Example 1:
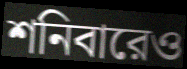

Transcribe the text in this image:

শনিবারেও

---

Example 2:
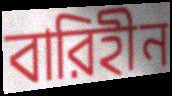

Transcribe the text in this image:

বারিহীন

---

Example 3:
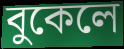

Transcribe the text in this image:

বুকেলে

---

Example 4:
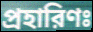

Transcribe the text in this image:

প্রহারিণঃ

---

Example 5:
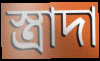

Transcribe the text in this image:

স্ত্রাদা